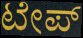
ಟೇಪ್